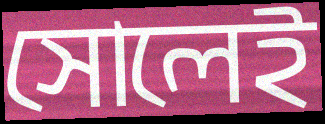
সোলেই